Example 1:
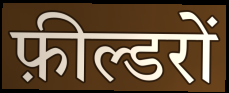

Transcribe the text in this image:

फ़ील्डरों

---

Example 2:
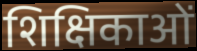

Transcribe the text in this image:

शिक्षिकाओं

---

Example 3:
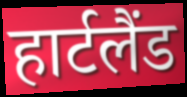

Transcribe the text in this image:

हार्टलैंड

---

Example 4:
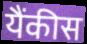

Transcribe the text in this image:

यैंकीस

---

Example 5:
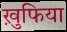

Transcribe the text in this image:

ख़ुफिया